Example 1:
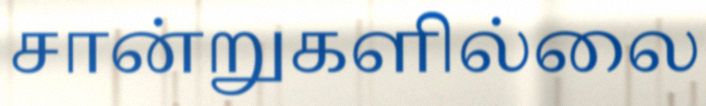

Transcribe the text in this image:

சான்றுகளில்லை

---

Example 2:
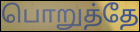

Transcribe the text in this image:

பொறுத்தே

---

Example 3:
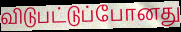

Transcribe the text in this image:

விடுபட்டுப்போனது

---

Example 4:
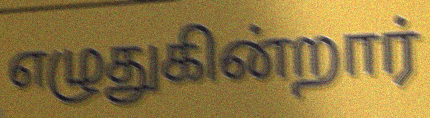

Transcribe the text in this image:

எழுதுகின்றார்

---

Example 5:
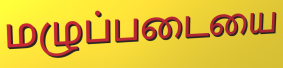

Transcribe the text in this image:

மழுப்படையை